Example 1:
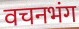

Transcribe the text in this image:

वचनभंग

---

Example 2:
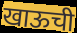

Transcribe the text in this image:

खाऊची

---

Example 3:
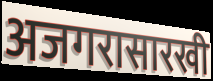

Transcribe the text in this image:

अजगरासारखी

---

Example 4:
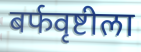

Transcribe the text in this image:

बर्फवृष्टीला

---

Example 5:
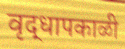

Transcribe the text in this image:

वृद्धापकाळी